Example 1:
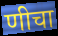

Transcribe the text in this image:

णीचा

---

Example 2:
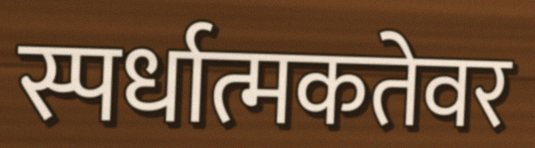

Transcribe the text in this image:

स्पर्धात्मकतेवर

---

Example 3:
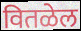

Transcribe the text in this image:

वितळेल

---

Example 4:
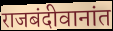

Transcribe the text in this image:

राजबंदीवानांत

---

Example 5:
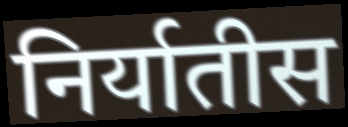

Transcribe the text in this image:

निर्यातीस